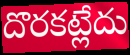
దొరకట్లేదు